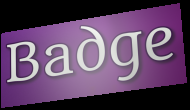
Badge